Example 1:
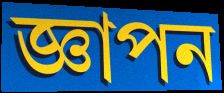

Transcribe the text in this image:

জ্ঞাপন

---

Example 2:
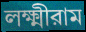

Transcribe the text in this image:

লক্ষ্মীরাম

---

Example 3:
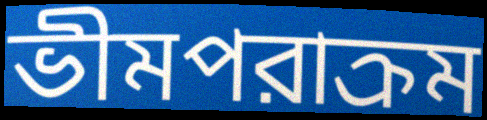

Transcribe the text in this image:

ভীমপরাক্রম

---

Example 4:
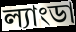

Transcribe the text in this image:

ল্যাংডা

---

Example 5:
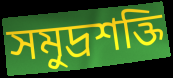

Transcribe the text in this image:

সমুদ্রশক্তি